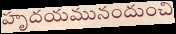
హృదయమునందుంచి